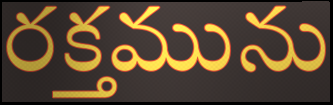
రక్తమును